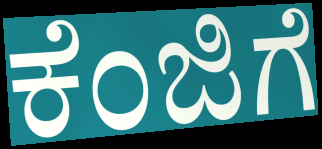
ಕೆಂಜಿಗೆ